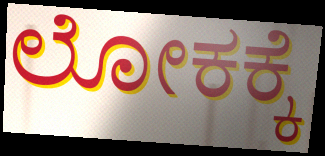
ಲೋಕಕ್ಕೆ